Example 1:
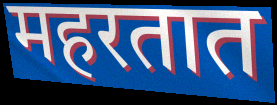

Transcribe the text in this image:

महरतात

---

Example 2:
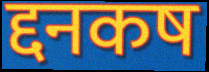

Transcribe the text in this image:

द्दनकष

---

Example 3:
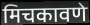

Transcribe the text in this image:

मिचकावणे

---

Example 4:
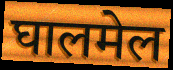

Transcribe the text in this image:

घालमेल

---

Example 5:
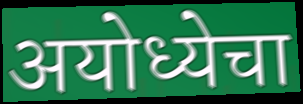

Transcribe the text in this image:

अयोध्येचा